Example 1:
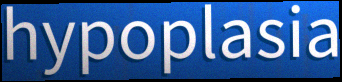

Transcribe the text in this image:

hypoplasia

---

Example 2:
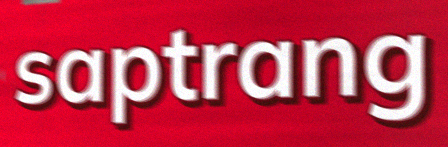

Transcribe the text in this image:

saptrang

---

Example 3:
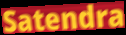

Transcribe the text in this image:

Satendra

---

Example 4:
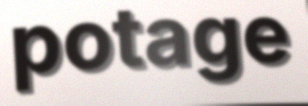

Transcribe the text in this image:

potage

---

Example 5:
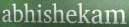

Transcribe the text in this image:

abhishekam